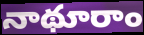
నాథూరాం